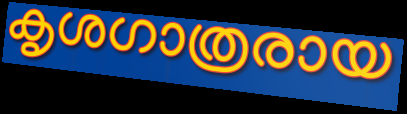
കൃശഗാത്രരായ